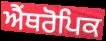
ਐਂਥਰੋਪਿਕ